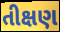
તીક્ષણ